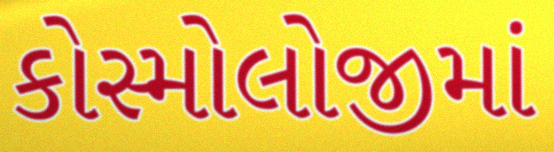
કોસ્મોલોજીમાં